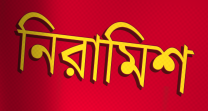
নিরামিশ